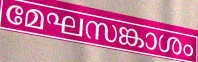
മേഘസങ്കാശം